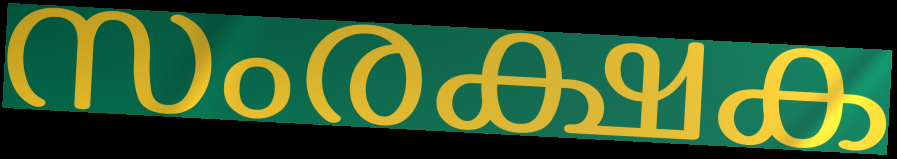
സംരക്ഷക